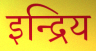
इन्द्रिय